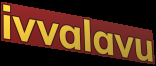
ivvalavu